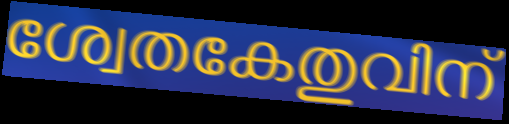
ശ്വേതകേതുവിന്